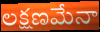
లక్షణమేనా